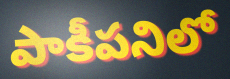
పాకీపనిలో